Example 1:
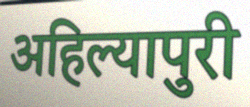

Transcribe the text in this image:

अहिल्यापुरी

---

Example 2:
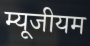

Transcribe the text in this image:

म्यूजीयम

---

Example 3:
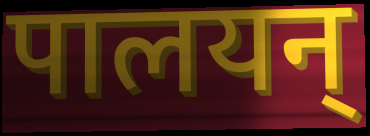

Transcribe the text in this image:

पालयन्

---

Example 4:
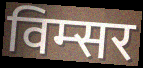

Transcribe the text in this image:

विम्सर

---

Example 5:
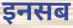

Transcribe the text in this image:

इनसब